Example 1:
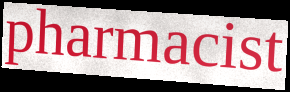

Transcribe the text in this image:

pharmacist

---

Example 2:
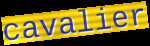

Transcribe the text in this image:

cavalier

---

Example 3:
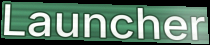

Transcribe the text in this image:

Launcher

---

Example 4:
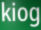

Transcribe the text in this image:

kiog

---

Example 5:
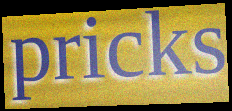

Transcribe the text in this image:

pricks